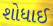
શોધાઈ